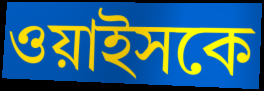
ওয়াইসকে